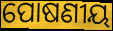
ପୋଷଣୀୟ